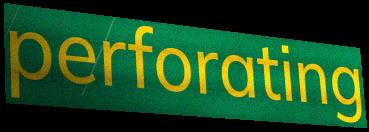
perforating